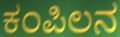
ಕಂಪಿಲನ